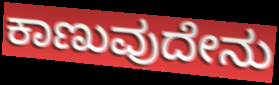
ಕಾಣುವುದೇನು